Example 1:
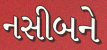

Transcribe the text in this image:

નસીબને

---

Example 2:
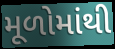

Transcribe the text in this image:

મૂળોમાંથી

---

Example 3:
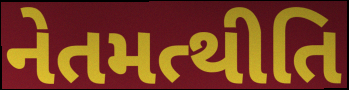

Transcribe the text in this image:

નેતમત્થીતિ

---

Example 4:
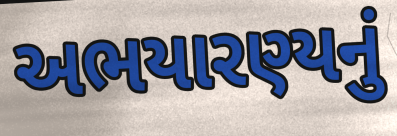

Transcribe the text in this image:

અભયારણ્યનું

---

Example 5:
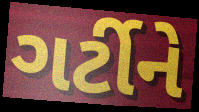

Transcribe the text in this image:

ગર્ટીને